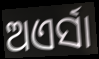
ଅଏର୍ସା